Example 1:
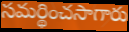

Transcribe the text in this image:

సమర్థించసాగారు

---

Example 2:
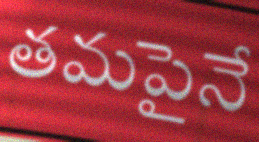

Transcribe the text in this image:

తమపైనే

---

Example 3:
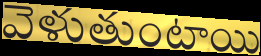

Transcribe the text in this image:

వెళుతుంటాయి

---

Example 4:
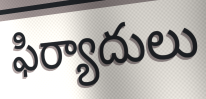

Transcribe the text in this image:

ఫిర్యాదులు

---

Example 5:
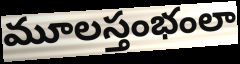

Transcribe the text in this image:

మూలస్తంభంలా